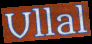
Ullal